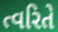
ત્વરિતે